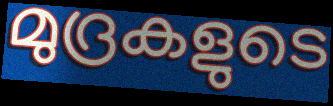
മുദ്രകളുടെ